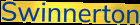
Swinnerton